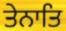
ਤੇਨਾਤਿ